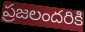
ప్రజలందరికి